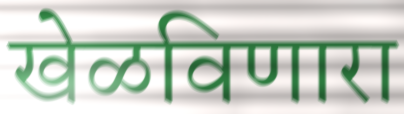
खेळविणारा